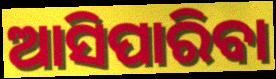
ଆସିପାରିବା